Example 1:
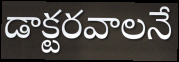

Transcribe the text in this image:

డాక్టరవాలనే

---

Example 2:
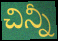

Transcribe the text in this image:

చిన్నీ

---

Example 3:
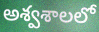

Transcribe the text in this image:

అశ్వశాలలో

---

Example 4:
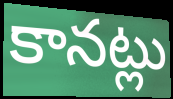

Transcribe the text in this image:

కానట్లు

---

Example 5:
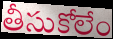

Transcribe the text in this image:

తీసుకోలేం